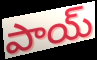
పాయ్